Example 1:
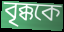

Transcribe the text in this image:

বৃক্ককে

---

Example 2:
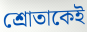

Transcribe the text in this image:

শ্রোতাকেই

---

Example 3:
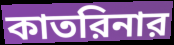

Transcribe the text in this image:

কাতরিনার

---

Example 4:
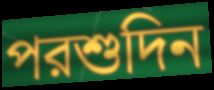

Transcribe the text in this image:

পরশুদিন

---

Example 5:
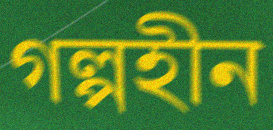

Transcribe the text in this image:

গল্পহীন